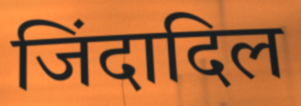
जिंदादिल